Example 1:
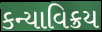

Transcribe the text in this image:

કન્યાવિક્રય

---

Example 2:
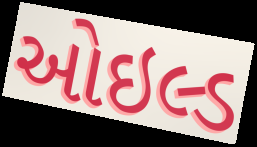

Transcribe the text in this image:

ઓઇલ્ડ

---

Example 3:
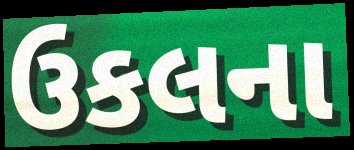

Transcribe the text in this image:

ઉકલના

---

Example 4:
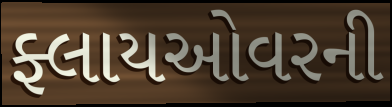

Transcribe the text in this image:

ફ્લાયઓવરની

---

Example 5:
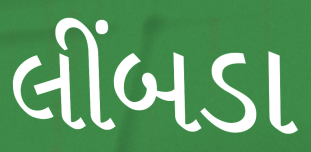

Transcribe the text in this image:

લીંબડા